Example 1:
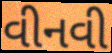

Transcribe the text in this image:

વીનવી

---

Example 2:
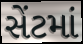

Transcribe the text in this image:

સેંટમાં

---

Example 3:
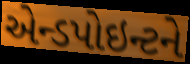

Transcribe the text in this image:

એન્ડપોઇન્ટને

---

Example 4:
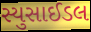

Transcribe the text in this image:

સ્યુસાઈડલ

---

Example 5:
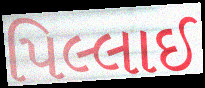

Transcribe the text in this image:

પિલ્લાઈ